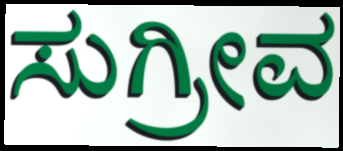
ಸುಗ್ರೀವ